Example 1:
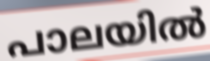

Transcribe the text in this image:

പാലയിൽ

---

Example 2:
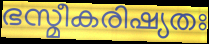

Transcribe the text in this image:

ഭസ്മീകരിഷ്യതഃ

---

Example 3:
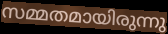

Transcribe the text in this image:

സമ്മതമായിരുന്നു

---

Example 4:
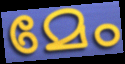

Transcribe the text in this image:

മേം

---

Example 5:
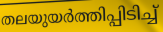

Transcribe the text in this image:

തലയുയർത്തിപ്പിടിച്ച്